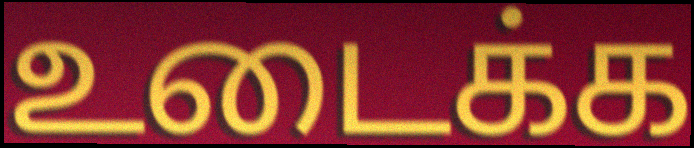
உடைக்க